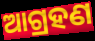
ଆଗ୍ରହଣ